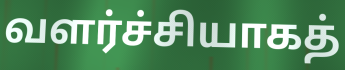
வளர்ச்சியாகத்